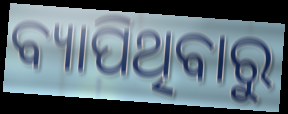
ବ୍ୟାପିଥିବାରୁ